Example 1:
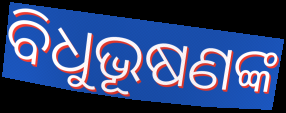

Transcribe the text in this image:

ବିଧୁଭୂଷଣଙ୍କ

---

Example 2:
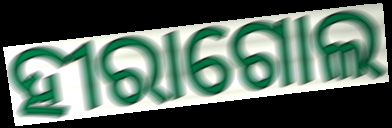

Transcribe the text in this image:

ହୀରାଗୋଲ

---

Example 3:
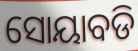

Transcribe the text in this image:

ସୋୟାବଡି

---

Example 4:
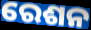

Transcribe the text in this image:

ରେଶନ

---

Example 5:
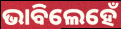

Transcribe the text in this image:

ଭାବିଲେହେଁ